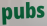
pubs